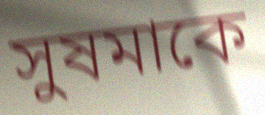
সুষমাকে